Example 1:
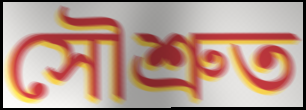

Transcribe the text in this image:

সৌশ্ৰুত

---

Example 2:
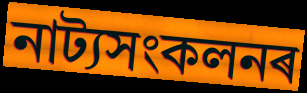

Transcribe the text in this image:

নাট্যসংকলনৰ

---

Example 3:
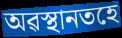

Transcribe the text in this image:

অৱস্থানতহে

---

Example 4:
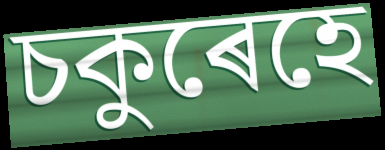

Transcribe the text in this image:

চকুৰেহে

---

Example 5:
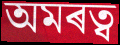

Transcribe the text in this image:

অমৰত্ব